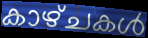
കാഴ്‌ചകൾ